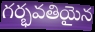
గర్భవతియైన